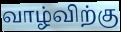
வாழ்விற்கு